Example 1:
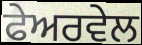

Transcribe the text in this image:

ਫੇਅਰਵੇਲ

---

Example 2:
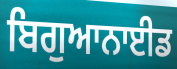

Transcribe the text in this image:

ਬਿਗੁਆਨਾਈਡ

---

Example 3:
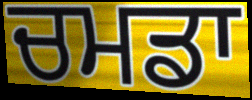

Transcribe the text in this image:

ਚਮਡਾ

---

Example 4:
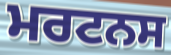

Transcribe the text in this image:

ਮਰਟਨਸ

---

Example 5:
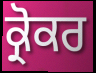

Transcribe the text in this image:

ਕ੍ਰੋਕਰ